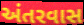
અંતરવાસ